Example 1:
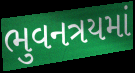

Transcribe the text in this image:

ભુવનત્રયમાં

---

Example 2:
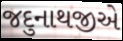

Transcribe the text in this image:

જદુનાથજીએ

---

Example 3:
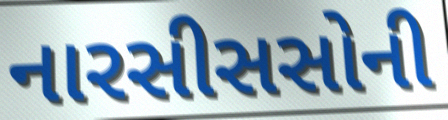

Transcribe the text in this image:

નારસીસસોની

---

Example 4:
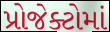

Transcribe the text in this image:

પ્રોજેક્ટોમાં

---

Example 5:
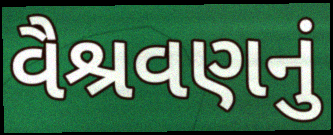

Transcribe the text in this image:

વૈશ્રવણનું